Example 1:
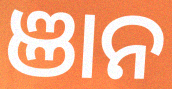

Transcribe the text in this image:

ଞାନ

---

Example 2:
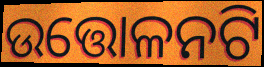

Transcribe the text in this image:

ଉତ୍ତୋଳନଟି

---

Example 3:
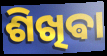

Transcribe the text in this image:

ଶିଖିଵା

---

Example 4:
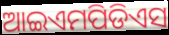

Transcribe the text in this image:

ଆଇଏମପିଡିଏସ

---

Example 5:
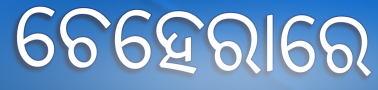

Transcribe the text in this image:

ଚେହେରାରେ